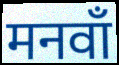
मनवाँ